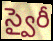
స్వైరీ